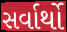
સર્વાર્થો